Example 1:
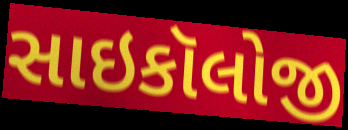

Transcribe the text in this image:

સાઇકૉલોજી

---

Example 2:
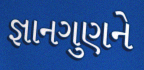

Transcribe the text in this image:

જ્ઞાનગુણને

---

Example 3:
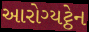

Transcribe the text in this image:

આરોગ્યટ્ઠેન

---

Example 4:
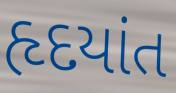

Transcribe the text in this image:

હૃદયાંત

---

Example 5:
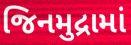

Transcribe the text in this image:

જિનમુદ્રામાં